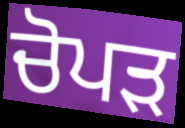
ਚੋਪੜ